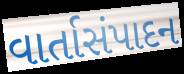
વાર્તાસંપાદન